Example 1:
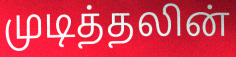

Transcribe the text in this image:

முடித்தலின்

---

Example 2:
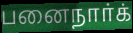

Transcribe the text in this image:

பனைநார்க்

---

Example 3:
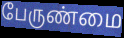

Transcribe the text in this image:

பேருண்மை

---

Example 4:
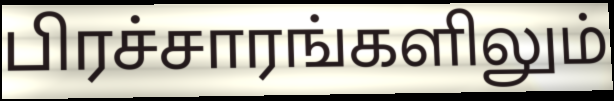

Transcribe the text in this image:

பிரச்சாரங்களிலும்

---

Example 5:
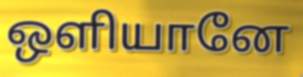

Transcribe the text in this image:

ஒளியானே